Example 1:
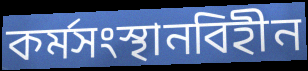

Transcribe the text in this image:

কর্মসংস্থানবিহীন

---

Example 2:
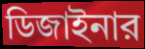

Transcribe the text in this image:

ডিজাইনার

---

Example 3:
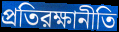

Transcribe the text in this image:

প্রতিরক্ষানীতি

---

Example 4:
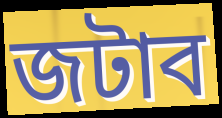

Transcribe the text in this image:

জটাব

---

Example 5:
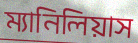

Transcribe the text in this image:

ম্যানিলিয়াস